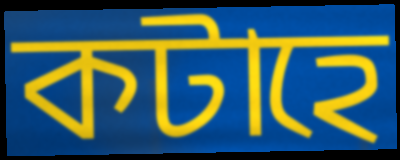
কটাহে